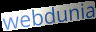
webdunia